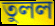
তুলল